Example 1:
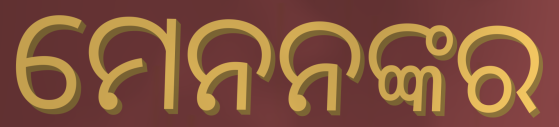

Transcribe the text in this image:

ମେନନଙ୍କର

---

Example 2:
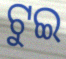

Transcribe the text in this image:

ଟୁଇ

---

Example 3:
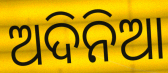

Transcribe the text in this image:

ଅଦିନିଆ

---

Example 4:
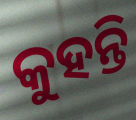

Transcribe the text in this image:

କୁହନ୍ତି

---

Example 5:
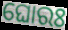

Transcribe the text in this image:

ଘୋରଃ